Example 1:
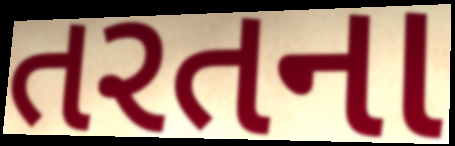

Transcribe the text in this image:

તરતના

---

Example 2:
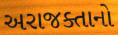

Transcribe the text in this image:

અરાજક્તાનો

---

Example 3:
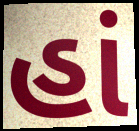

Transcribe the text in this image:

હાં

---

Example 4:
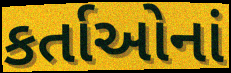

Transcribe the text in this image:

કર્તાઓનાં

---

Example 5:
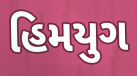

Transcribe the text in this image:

હિમયુગ